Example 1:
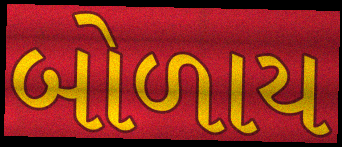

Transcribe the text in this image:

બોળાય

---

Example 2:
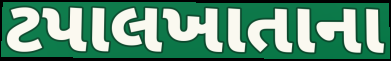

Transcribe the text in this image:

ટપાલખાતાના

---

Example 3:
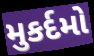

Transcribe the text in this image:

મુકર્દમો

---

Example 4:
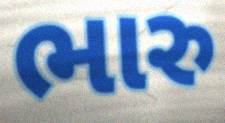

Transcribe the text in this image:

ભારુ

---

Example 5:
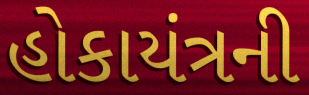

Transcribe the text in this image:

હોકાયંત્રની